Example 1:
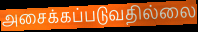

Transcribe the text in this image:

அசைக்கப்படுவதில்லை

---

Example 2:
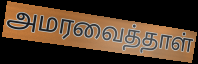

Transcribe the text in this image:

அமரவைத்தாள்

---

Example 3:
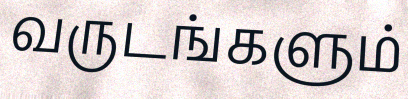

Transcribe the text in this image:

வருடங்களும்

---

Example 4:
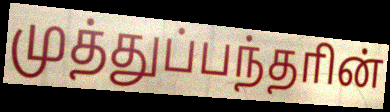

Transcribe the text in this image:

முத்துப்பந்தரின்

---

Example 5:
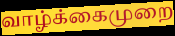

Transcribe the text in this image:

வாழ்க்கைமுறை